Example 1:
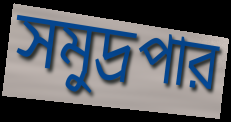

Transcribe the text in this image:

সমুদ্রপার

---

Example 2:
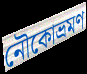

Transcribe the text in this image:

নৌকোভ্রমণ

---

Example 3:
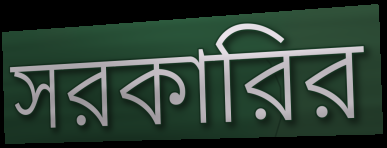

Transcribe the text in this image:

সরকারির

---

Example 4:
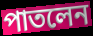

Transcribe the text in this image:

পাতলেন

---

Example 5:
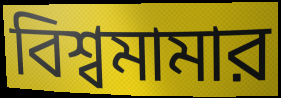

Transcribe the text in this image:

বিশ্বমামার